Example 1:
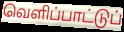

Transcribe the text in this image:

வெளிப்பாட்டுப்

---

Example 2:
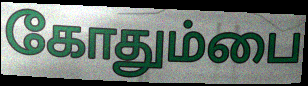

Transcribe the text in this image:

கோதும்பை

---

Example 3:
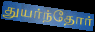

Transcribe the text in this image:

துயர்ந்தோர்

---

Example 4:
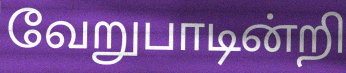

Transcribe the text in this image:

வேறுபாடின்றி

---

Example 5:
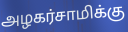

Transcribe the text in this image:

அழகர்சாமிக்கு